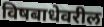
विषबाधेवरील